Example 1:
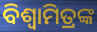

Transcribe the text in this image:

ବିଶ୍ବାମିତ୍ରଙ୍କ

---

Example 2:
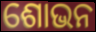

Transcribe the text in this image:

ଶୋଭନ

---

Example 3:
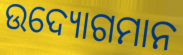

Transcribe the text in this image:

ଉଦ୍ୟୋଗମାନ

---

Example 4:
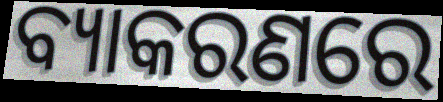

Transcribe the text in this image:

ବ୍ୟାକରଣରେ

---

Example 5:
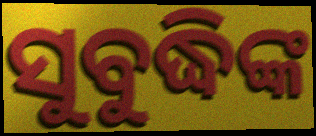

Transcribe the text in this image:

ସୁବୁଦ୍ଧିଙ୍କ